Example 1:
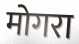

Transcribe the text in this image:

मोगरा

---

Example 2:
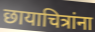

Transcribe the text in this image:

छायाचित्रांना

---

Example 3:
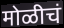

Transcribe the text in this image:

मोळीचं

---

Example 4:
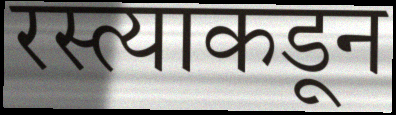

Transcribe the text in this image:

रस्त्याकडून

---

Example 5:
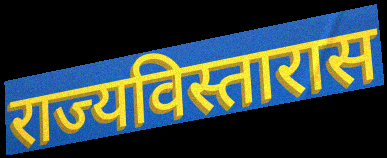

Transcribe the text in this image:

राज्यविस्तारास